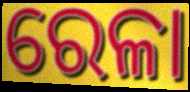
ରେଳା